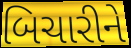
બિચારીને